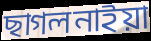
ছাগলনাইয়া